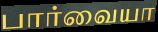
பார்வையா